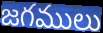
జగములు